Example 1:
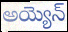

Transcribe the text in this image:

అయ్యెన్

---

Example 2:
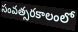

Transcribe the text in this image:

సంవత్సరకాలంలో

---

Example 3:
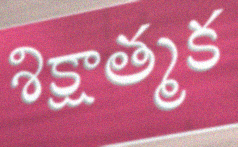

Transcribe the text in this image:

శిక్షాత్మక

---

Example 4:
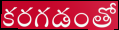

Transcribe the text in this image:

కరగడంతో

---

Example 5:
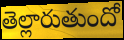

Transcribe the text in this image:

తెల్లారుతుందో